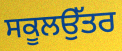
ਸਕੂਲਉੱਤਰ